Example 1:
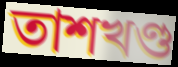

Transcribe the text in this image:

তাশখণ্ড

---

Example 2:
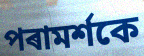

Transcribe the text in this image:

পৰামৰ্শকে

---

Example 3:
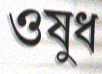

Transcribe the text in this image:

ওষুধ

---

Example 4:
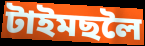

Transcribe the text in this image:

টাইমছলৈ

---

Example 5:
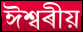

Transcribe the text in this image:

ঈশ্বৰীয়